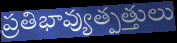
ప్రతిభావ్యుత్పత్తులు